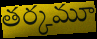
తర్కమూ